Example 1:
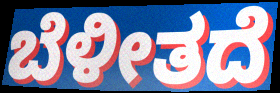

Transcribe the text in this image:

ಬೆಳೀತದೆ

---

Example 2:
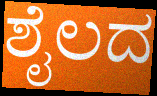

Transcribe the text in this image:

ಶೈಲದ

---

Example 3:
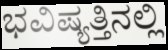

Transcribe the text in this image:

ಭವಿಷ್ಯತ್ತಿನಲ್ಲಿ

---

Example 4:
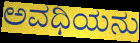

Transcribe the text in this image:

ಅವಧಿಯನು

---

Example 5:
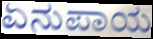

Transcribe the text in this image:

ಏನುಪಾಯ